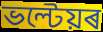
ভল্টেয়ৰ